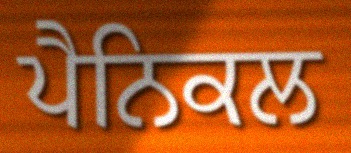
ਪੈਨਿਕਲ